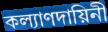
কল্যাণদায়িনী